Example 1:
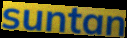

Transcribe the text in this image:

suntan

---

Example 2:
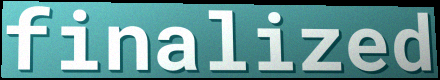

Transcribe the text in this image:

finalized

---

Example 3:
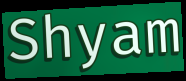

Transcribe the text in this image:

Shyam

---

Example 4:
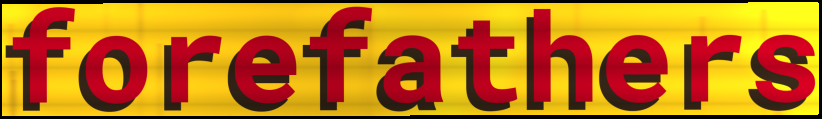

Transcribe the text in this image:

forefathers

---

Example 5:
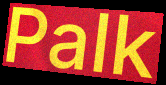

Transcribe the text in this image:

Palk